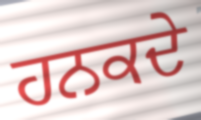
ਹਨਕਦੇ